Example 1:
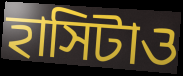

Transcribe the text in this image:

হাসিটাও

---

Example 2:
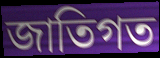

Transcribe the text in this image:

জাতিগত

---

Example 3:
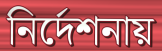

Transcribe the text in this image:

নির্দেশনায়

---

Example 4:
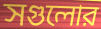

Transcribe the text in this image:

সগুলোর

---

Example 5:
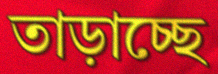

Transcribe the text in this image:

তাড়াচ্ছে